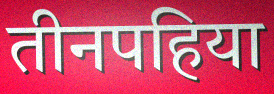
तीनपहिया